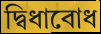
দ্বিধাবোধ